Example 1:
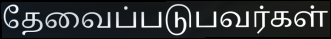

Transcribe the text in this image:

தேவைப்படுபவர்கள்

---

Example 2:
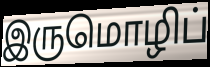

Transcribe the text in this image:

இருமொழிப்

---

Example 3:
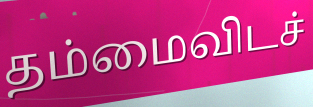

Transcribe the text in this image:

தம்மைவிடச்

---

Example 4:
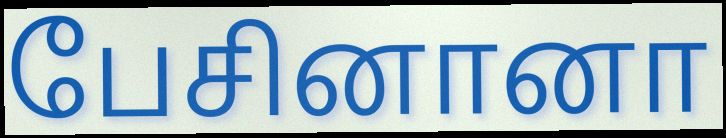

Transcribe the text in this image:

பேசினானா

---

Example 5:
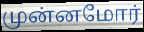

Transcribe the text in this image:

முன்னமோர்